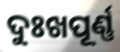
ଦୁଃଖପୂର୍ଣ୍ଣ